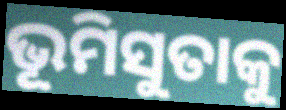
ଭୂମିସୁତାକୁ